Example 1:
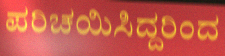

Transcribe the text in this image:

ಪರಿಚಯಿಸಿದ್ದರಿಂದ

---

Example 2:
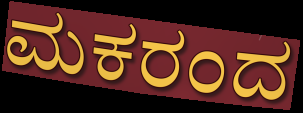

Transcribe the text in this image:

ಮಕರಂದ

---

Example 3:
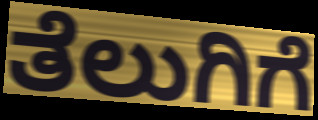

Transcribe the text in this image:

ತೆಲುಗಿಗೆ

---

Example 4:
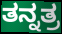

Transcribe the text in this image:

ತನ್ನತ್ರ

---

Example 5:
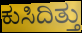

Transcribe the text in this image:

ಕುಸಿದಿತ್ತು